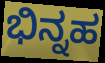
ಭಿನ್ನಹ